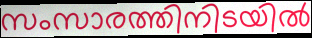
സംസാരത്തിനിടയിൽ